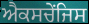
ਐਕਸਚੇਂਜਿਸ